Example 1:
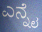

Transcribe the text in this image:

ಎನ್ನೈ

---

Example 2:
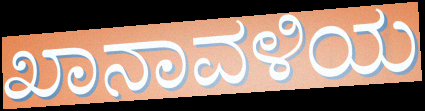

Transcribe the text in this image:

ಖಾನಾವಳಿಯ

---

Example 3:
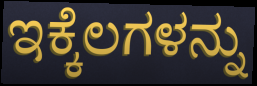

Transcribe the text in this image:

ಇಕ್ಕೆಲಗಳನ್ನು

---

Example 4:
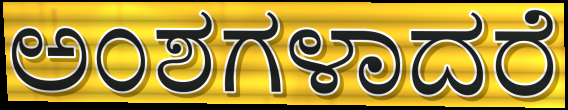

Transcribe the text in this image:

ಅಂಶಗಳಾದರೆ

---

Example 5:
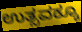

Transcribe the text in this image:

ಉತ್ಸವಕ್ಕೂ